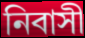
নিবাসী